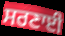
ਸਰਣਾਈ